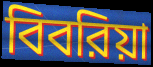
বিবরিয়া